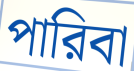
পারিবা